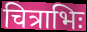
चित्राभिः